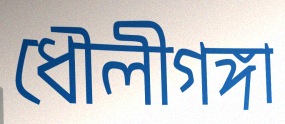
ধৌলীগঙ্গা